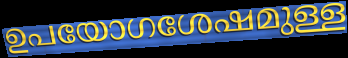
ഉപയോഗശേഷമുള്ള